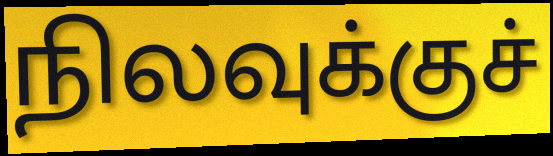
நிலவுக்குச்